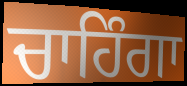
ਚਾਹਿੰਗਾ